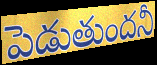
పెడుతుందనీ